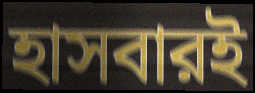
হাসবারই